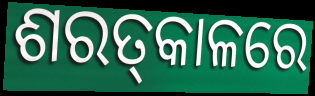
ଶରତ୍‌କାଳରେ